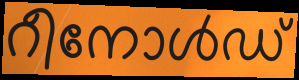
റീനോൾഡ്